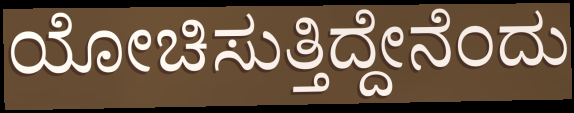
ಯೋಚಿಸುತ್ತಿದ್ದೇನೆಂದು